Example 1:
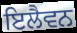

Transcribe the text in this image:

ਇਲੈਵਨ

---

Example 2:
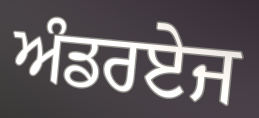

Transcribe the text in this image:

ਅੰਡਰਏਜ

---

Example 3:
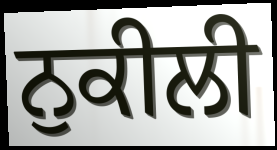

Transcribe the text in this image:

ਨੁਕੀਲੀ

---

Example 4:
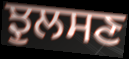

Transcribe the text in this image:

ਝੁਲਸਣ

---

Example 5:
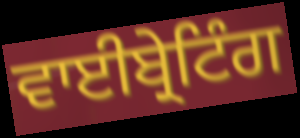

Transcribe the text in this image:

ਵਾਈਬ੍ਰੇਟਿੰਗ